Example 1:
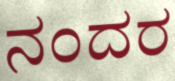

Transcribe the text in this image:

ನಂದರ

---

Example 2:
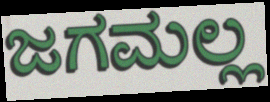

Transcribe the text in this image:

ಜಗಮಲ್ಲ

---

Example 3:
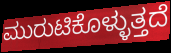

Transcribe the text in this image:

ಮುರುಟಿಕೊಳ್ಳುತ್ತದೆ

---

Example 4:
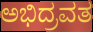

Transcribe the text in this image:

ಅಭಿದ್ರವತ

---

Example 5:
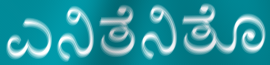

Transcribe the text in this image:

ಎನಿತೆನಿತೊ